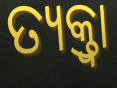
ତ୍ୟକ୍ତ୍ୱା